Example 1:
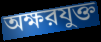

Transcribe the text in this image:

অক্ষরযুক্ত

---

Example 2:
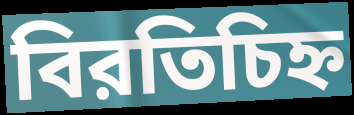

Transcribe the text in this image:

বিরতিচিহ্ন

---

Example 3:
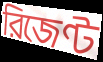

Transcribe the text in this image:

রিজেণ্ট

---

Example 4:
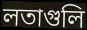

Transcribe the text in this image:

লতাগুলি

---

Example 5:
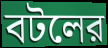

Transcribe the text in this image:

বটলের